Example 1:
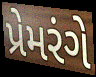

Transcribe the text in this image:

પ્રેમરંગે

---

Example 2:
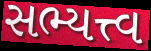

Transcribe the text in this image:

સભ્યત્ત્વ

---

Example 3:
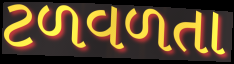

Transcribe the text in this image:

ટળવળતા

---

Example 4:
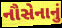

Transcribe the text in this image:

નૌસેનાનું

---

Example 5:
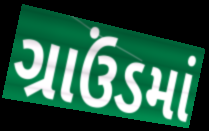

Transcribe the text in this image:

ગ્રાઉંડમાં